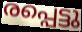
രപ്പെട്ടു